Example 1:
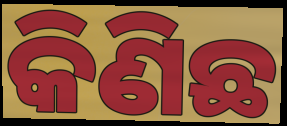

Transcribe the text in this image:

କିଣିଛ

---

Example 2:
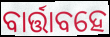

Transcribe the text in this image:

ବାର୍ତ୍ତାବହେ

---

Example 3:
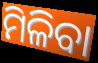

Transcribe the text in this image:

ମିଳିବା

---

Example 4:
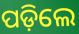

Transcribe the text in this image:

ପଡ଼ିଲେ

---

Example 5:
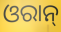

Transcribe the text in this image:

ଓରାନ୍